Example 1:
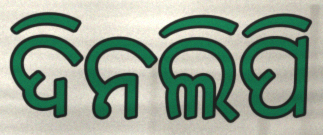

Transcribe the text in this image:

ଦିନଲିପି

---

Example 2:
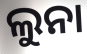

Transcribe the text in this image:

ଲୁନା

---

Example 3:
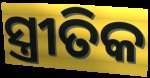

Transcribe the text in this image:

ସ୍ତ୍ରୀତିକ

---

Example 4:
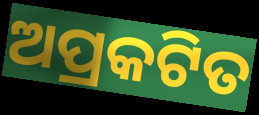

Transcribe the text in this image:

ଅପ୍ରକଟିତ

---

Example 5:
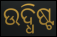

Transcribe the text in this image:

ଉଦ୍ଧିଷ୍ଟ